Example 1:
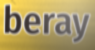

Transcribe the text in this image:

beray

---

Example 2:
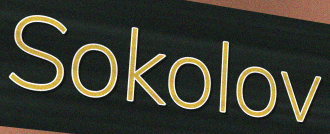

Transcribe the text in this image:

Sokolov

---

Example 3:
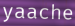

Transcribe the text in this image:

yaache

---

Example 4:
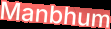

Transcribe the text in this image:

Manbhum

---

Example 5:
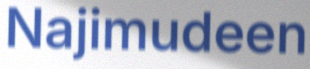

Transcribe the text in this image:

Najimudeen